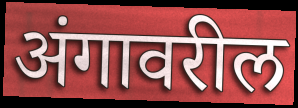
अंगावरील